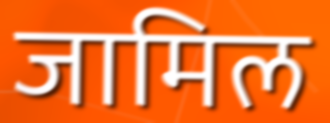
जामिल